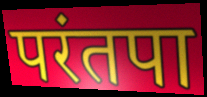
परंतपा